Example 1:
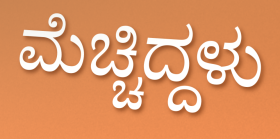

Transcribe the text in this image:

ಮೆಚ್ಚಿದ್ದಳು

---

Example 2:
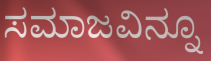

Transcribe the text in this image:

ಸಮಾಜವಿನ್ನೂ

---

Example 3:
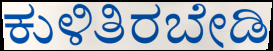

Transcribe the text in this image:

ಕುಳಿತಿರಬೇಡಿ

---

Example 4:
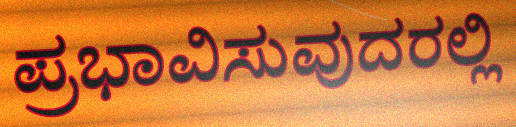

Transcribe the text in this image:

ಪ್ರಭಾವಿಸುವುದರಲ್ಲಿ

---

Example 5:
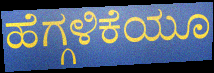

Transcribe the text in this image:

ಹೆಗ್ಗಳಿಕೆಯೂ